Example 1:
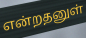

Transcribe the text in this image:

என்றதனுள்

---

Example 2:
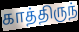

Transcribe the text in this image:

காத்திருந்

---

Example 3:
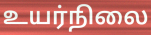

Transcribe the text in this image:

உயர்நிலை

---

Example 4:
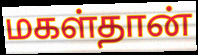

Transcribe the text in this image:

மகள்தான்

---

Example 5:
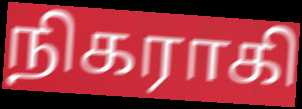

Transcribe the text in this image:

நிகராகி